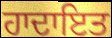
ਹਾਦਾਇਤ